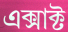
এক্সাক্ট